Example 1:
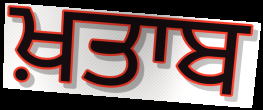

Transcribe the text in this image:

ਖ਼ਤਾਬ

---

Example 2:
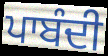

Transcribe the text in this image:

ਪਾਬੰਦੀ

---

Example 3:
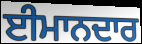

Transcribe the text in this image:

ਈਮਾਨਦਾਰ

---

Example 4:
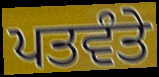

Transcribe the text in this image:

ਪਤਵੰਤੇ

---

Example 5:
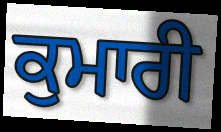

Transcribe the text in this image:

ਕੁਮਾਰੀ